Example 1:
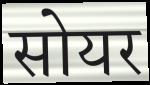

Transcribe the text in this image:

सोयर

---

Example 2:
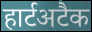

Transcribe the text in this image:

हार्टअटैक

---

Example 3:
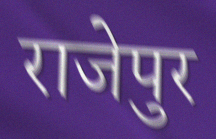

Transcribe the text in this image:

राजेपुर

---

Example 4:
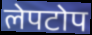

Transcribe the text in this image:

लेपटोप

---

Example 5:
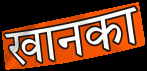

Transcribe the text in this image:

खानका